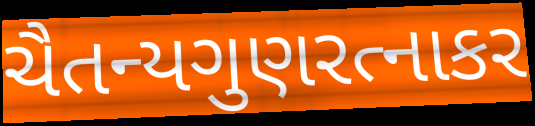
ચૈતન્યગુણરત્નાકર